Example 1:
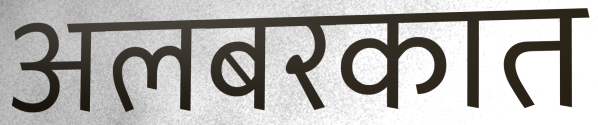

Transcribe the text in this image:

अलबरकात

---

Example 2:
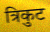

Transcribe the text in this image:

त्रिकुट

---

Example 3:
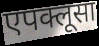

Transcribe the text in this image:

एपक्लूसा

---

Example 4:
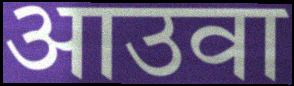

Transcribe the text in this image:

आउवा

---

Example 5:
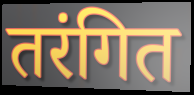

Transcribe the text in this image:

तरंगित